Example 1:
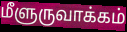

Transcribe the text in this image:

மீளுருவாக்கம்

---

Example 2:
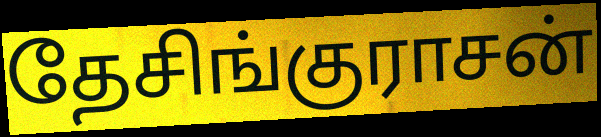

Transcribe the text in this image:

தேசிங்குராசன்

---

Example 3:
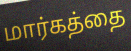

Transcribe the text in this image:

மார்கத்தை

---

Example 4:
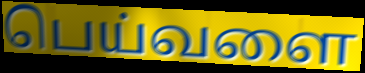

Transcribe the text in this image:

பெய்வளை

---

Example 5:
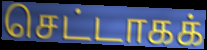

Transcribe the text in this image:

செட்டாகக்